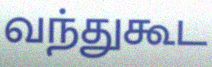
வந்துகூட